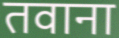
तवाना